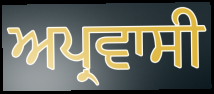
ਅਪ੍ਰਵਾਸੀ